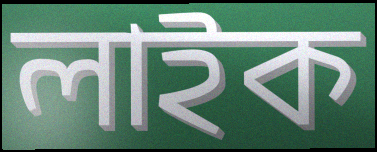
লাইক